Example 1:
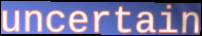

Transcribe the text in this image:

uncertain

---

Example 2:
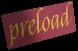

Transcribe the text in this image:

preload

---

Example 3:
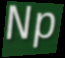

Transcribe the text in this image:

Np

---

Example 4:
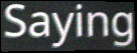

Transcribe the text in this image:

Saying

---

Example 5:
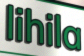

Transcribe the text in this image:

lihila